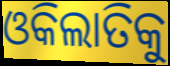
ଓକିଲାତିକୁ